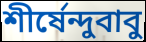
শীর্ষেন্দুবাবু